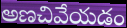
అణచివేయడం